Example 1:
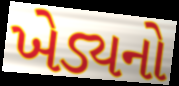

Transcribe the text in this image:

ખેડ્યનો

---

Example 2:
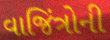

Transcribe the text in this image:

વાજિંત્રોની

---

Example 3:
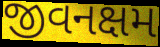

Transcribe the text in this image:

જીવનક્ષમ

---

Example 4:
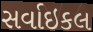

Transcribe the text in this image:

સર્વાઇકલ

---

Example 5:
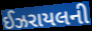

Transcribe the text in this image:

ઈઝરાયલની